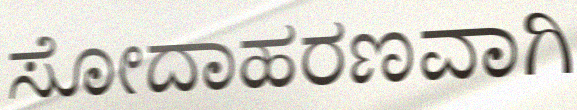
ಸೋದಾಹರಣವಾಗಿ